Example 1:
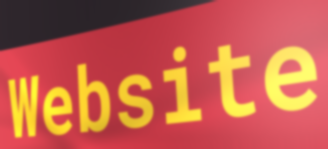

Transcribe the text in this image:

Website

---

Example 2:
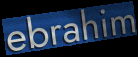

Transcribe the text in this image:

ebrahim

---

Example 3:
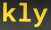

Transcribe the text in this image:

kly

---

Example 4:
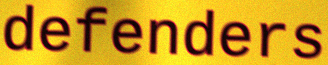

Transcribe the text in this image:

defenders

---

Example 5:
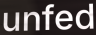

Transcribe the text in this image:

unfed